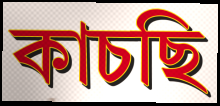
কাচছি